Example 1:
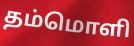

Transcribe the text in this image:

தம்மொளி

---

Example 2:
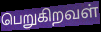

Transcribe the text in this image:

பெறுகிறவள்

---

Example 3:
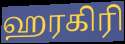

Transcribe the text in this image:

ஹரகிரி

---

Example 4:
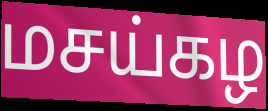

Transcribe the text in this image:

மசய்கழ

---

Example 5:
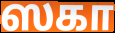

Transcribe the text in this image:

ஸகா